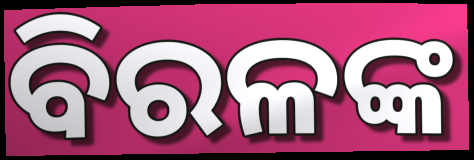
ବିରଳଙ୍କ